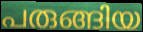
പരുങ്ങിയ